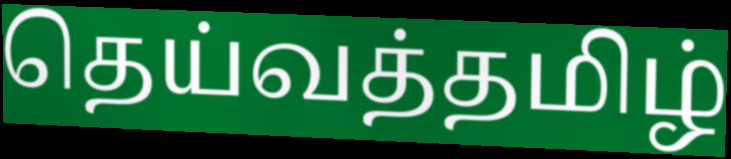
தெய்வத்தமிழ்